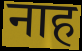
नाह